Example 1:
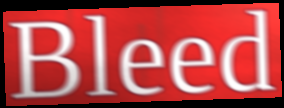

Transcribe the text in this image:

Bleed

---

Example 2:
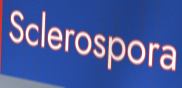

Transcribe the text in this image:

Sclerospora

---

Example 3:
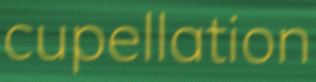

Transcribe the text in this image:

cupellation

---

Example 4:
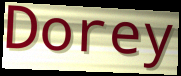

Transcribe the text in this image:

Dorey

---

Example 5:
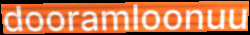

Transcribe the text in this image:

dooramloonuu